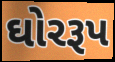
ઘોરરૂપ